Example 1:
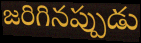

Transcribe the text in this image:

జరిగినప్పుడు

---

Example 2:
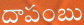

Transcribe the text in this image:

దాపంబు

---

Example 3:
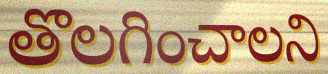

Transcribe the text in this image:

తొలగించాలని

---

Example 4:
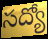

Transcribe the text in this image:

సద్యో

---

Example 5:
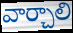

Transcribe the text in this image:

వార్చాలి